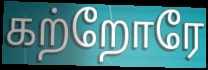
கற்றோரே